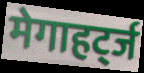
मेगाहर्ट्ज